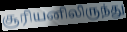
சூரியனிலிருந்து